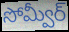
సోమ్వీర్